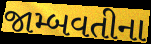
જામ્બવતીના